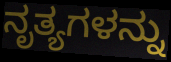
ನೃತ್ಯಗಳನ್ನು